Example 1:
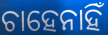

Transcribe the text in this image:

ଚାହେନାହିଁ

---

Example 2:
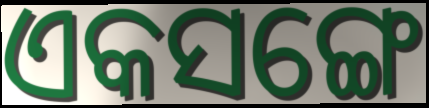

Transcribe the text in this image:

ଏକସଙ୍ଗେ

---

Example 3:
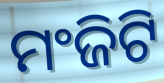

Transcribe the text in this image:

ମଂଜିଟି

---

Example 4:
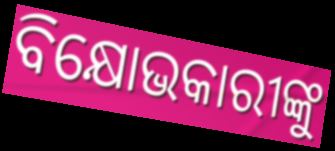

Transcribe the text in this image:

ବିକ୍ଷୋଭକାରୀଙ୍କୁ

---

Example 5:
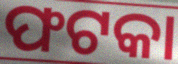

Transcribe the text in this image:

ଫଟକା